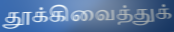
தூக்கிவைத்துக்